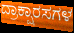
ದ್ರಾಕ್ಷಾರಸಗಳ